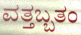
ವತ್ತಬ್ಬತಂ